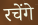
रचेंगे